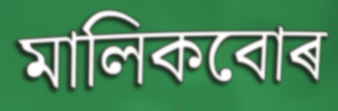
মালিকবোৰ